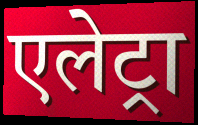
एलेट्रा